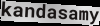
kandasamy